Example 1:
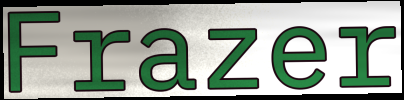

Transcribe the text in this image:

Frazer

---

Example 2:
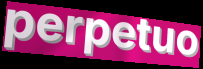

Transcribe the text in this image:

perpetuo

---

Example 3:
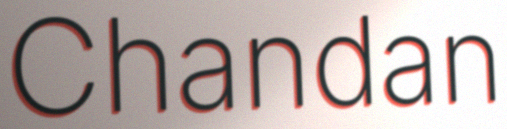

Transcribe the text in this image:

Chandan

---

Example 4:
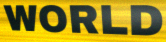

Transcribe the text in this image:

WORLD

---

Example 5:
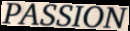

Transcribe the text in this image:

PASSION